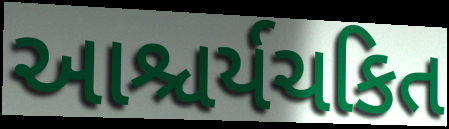
આશ્ચર્યચકિત